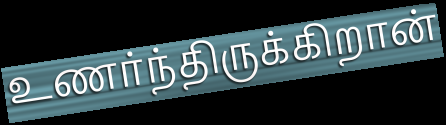
உணர்ந்திருக்கிறான்